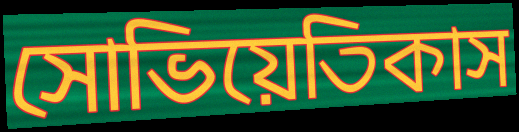
সোভিয়েতিকাস